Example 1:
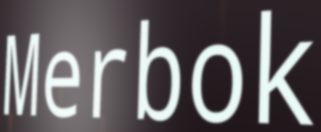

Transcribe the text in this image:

Merbok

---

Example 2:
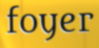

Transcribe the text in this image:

foyer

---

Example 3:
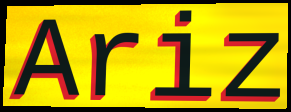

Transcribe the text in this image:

Ariz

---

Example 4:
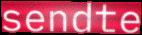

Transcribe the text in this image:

sendte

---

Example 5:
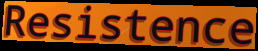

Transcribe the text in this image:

Resistence